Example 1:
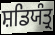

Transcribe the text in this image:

ਸ਼ਡਿਯੰਤ੍ਰ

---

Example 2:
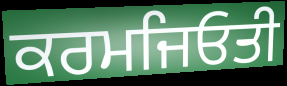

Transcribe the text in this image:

ਕਰਮਜਿਓਤੀ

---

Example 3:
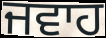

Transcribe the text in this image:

ਜਵਾਹ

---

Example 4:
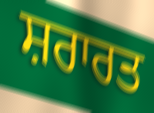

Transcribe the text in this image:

ਸ਼ਰਾਰਤ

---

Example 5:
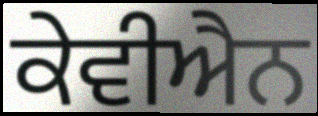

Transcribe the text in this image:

ਕੇਵੀਐਨ